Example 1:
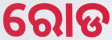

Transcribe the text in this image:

ରୋଡ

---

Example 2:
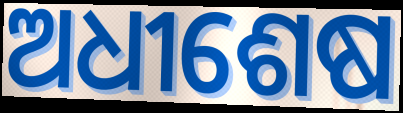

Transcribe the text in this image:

ଅଧୀଶେଷ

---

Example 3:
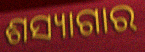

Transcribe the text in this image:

ଶସ୍ୟାଗାର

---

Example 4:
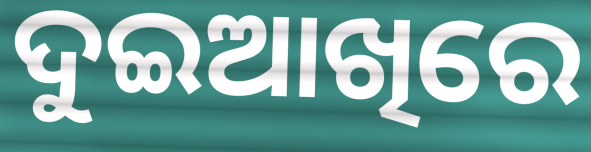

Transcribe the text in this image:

ଦୁଇଆଖିରେ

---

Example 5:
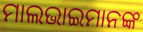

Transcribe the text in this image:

ମାଲଭାଇମାନଙ୍କ